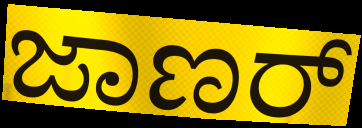
ಜಾಣರ್